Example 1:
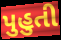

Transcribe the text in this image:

પુહુતી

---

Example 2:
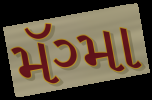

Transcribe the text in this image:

મૅગ્મા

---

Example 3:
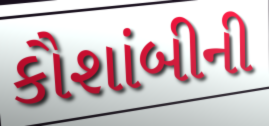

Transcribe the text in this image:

કૌશાંબીની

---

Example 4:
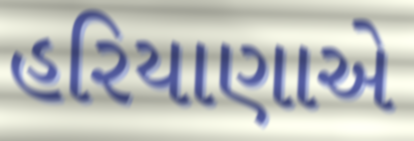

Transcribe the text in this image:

હરિયાણાએ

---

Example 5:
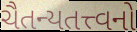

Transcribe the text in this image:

ચૈતન્યતત્ત્વનો